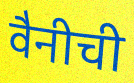
वैनीची